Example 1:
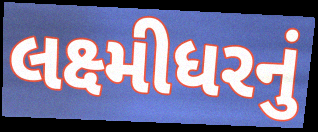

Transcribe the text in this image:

લક્ષ્મીધરનું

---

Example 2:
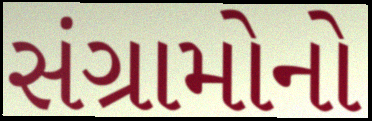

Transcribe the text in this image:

સંગ્રામોનો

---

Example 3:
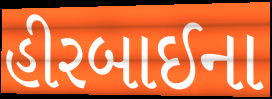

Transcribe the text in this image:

હીરબાઈના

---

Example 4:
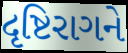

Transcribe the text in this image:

દૃષ્ટિરાગને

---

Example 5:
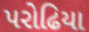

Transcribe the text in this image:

પરોઢિયા